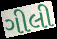
ગીલી